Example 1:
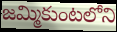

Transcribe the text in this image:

జమ్మికుంటలోని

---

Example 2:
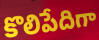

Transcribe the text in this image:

కొలిపేదిగా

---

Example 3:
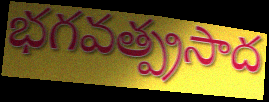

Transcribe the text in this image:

భగవత్ప్రసాద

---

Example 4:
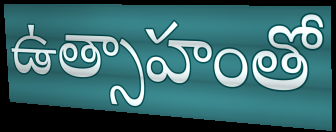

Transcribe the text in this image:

ఉత్సాహంతో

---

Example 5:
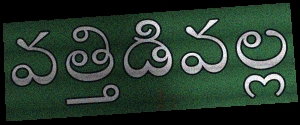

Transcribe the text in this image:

వత్తిడివల్ల